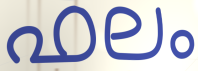
ഫലം